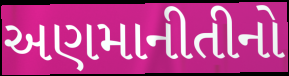
અણમાનીતીનો